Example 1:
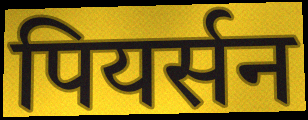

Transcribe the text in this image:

पियर्सन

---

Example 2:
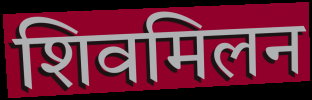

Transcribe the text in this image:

शिवमिलन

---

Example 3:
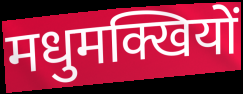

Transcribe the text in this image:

मधुमक्खियों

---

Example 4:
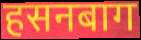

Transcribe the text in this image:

हसनबाग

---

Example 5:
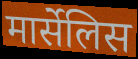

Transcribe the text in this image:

मार्सेलिस